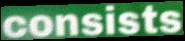
consists